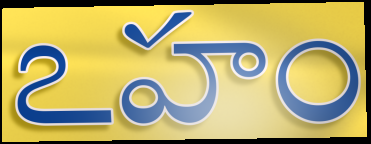
ఽహం